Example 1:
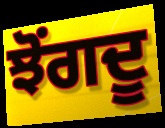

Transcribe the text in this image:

ਝੋਂਗਦੂ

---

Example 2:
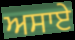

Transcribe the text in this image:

ਅਸਾਏ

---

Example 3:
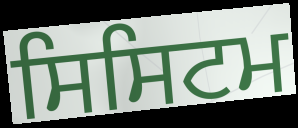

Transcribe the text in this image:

ਸਿਸਿਟਮ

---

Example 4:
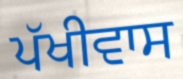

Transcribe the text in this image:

ਪੱਖੀਵਾਸ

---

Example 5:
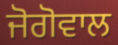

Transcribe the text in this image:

ਜੋਗੋਵਾਲ